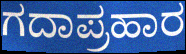
ಗದಾಪ್ರಹಾರ